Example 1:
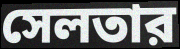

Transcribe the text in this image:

সেলতার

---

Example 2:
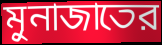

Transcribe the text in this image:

মুনাজাতের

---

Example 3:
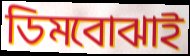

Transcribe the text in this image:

ডিমবোঝাই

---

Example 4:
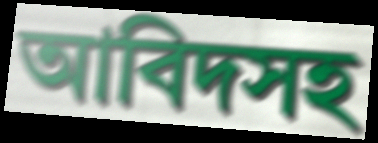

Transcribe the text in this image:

আবিদসহ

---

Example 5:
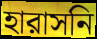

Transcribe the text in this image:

হারাসনি